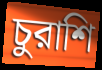
চুরাশি